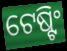
ଟେଷ୍ଟିଂ